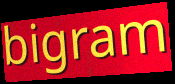
bigram